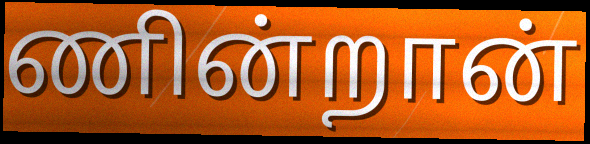
ணின்றான்